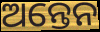
ଅନ୍ତେନ